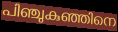
പിഞ്ചുകുഞ്ഞിനെ